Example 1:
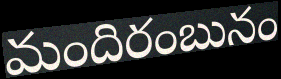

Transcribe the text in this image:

మందిరంబునం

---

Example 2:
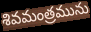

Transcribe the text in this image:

శివమంత్రమును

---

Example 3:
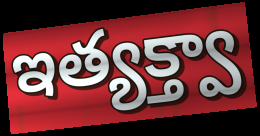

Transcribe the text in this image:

ఇత్యక్త్వా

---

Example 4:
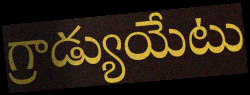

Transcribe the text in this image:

గ్రాడ్యుయేటు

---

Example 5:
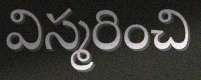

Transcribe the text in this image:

విస్మరించి